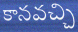
కానవచ్చి